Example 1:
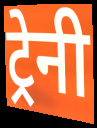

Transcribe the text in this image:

ट्रेनी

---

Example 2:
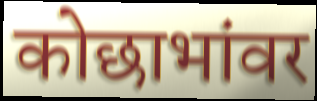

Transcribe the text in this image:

कोछाभांवर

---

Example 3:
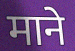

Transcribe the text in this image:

माने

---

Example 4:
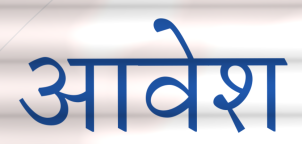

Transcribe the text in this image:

आवेश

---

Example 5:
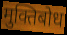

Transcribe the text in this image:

मुक्तिबोध